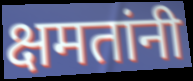
क्षमतांनी